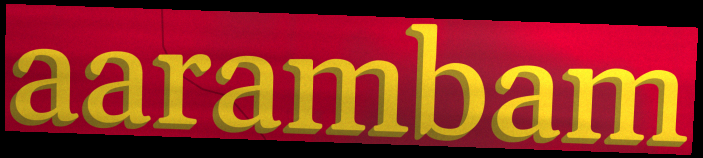
aarambam